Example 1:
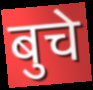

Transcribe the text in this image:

बुचे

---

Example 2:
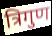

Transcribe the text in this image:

त्रिगुण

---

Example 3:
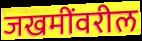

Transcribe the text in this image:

जखमींवरील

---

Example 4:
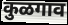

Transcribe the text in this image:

कुळगाव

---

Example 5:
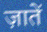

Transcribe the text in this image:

ज़ातें